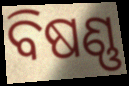
ବିଷଣ୍ଣ